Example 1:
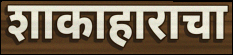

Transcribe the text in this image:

शाकाहाराचा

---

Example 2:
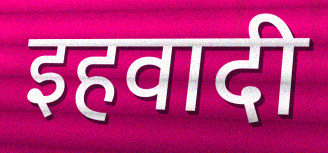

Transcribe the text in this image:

इहवादी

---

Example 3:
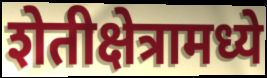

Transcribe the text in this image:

शेतीक्षेत्रामध्ये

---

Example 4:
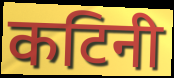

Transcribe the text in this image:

कटिनी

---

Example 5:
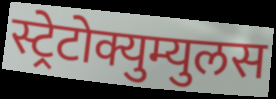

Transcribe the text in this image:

स्ट्रेटोक्युम्युलस